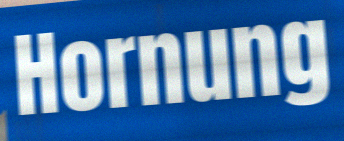
Hornung